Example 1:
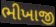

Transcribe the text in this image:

ભીખાજી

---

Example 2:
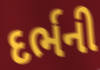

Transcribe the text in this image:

દર્ભની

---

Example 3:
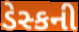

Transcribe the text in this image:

ડેસ્કની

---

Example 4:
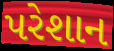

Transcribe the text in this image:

પરેશાન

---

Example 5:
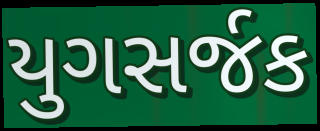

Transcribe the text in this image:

યુગસર્જક